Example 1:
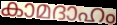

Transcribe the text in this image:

കാമദാഹം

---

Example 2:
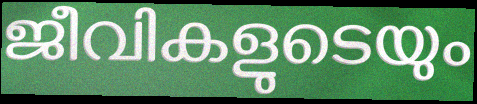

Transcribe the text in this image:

ജീവികളുടെയും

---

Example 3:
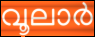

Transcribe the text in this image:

വൂലാർ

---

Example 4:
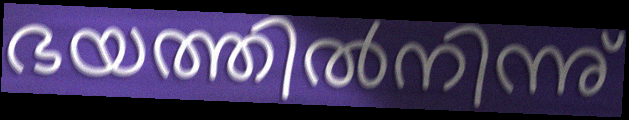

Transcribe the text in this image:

ഭയത്തിൽനിന്നു്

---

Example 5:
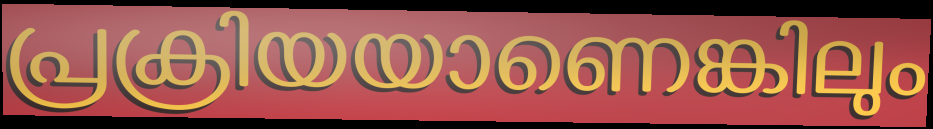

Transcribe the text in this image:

പ്രക്രിയയാണെങ്കിലും